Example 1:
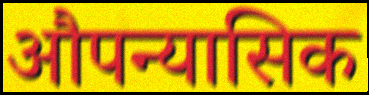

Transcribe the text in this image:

औपन्यासिक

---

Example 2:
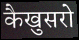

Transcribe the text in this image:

कैखुसरो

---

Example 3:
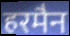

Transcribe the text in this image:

हरमैन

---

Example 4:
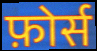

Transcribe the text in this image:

फ़ोर्स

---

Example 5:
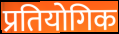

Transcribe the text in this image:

प्रतियोगिक